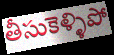
తీసుకెళ్ళిపో